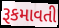
રૂકમાવતી